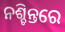
ନଶ୍ଚିନ୍ତରେ